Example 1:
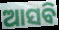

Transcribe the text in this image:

ଆସବି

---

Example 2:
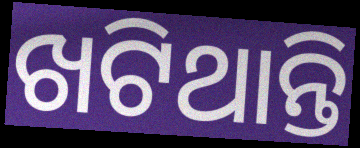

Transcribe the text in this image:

ଖଟିଥାନ୍ତି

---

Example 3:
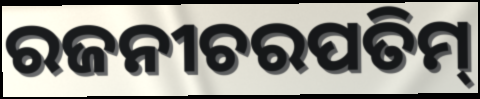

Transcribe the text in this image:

ରଜନୀଚରପତିମ୍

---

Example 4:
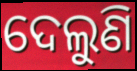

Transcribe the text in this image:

ଦେଲୁଣି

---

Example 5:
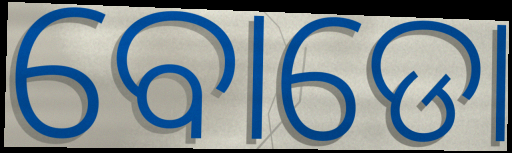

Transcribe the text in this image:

ବୋଡୋ